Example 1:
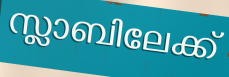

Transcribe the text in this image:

സ്ലാബിലേക്ക്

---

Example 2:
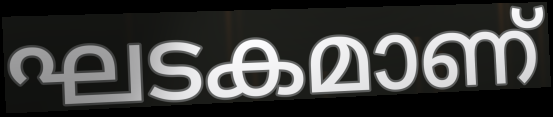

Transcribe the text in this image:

ഘടകമാണ്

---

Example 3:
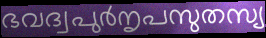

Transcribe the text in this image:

ഭവദ്വപുർനൃപസുതസ്യ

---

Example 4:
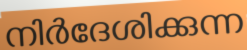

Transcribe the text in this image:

നിർദേശിക്കുന്ന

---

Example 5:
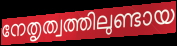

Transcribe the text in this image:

നേതൃത്വത്തിലുണ്ടായ